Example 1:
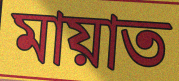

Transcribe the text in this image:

মায়াত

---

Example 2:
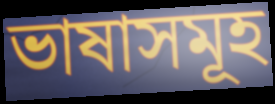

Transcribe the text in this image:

ভাষাসমূহ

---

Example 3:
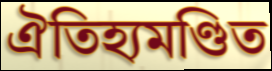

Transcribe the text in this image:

ঐতিহ্যমণ্ডিত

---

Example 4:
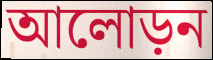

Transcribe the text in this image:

আলোড়ন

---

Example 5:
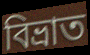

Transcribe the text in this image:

বিভ্ৰাত